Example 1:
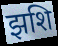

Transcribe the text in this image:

झशि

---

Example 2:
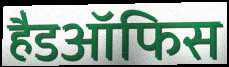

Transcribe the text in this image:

हैडऑफिस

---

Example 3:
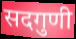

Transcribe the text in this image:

सदगुणी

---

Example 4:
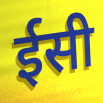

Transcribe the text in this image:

ईसी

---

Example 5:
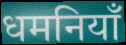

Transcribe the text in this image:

धमनियाँ